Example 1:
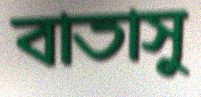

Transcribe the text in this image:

বাতাসু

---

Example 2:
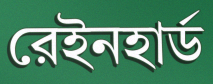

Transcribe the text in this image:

রেইনহার্ড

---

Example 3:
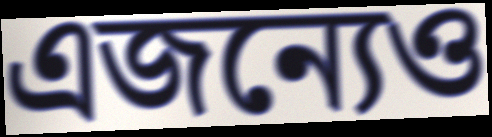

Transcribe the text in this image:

এজন্যেও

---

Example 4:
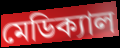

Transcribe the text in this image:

মেডিক্যাল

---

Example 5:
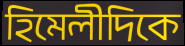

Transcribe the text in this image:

হিমেলীদিকে